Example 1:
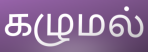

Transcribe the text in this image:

கழுமல்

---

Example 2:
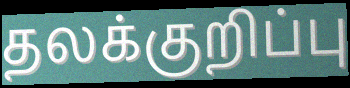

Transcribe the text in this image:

தலக்குறிப்பு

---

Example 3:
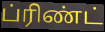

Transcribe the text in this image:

ப்ரிண்ட்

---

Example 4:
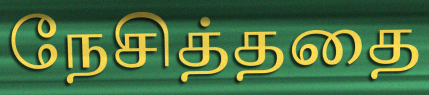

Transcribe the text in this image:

நேசித்ததை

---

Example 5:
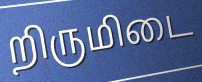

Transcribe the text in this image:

றிருமிடை